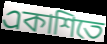
একাশিতে